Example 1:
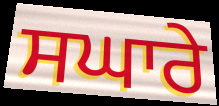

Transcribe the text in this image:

ਸਘਾਰੇ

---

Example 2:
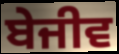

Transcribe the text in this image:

ਬੇਜੀਵ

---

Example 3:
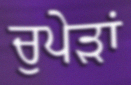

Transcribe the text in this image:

ਚੁਪੇੜਾਂ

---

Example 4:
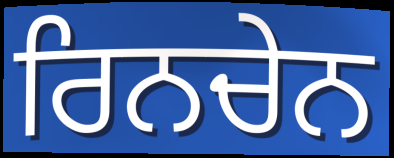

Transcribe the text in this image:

ਰਿਨਚੇਨ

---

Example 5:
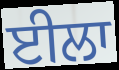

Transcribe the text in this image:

ਈਲਾ